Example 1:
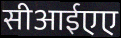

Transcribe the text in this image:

सीआईएए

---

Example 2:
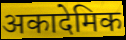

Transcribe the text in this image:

अकादेमिक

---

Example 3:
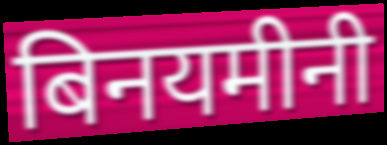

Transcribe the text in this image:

बिनयमीनी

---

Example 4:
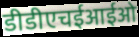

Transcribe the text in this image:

डीडीएचईआईओ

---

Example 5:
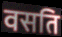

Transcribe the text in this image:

वसति